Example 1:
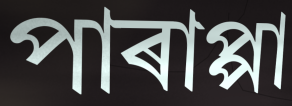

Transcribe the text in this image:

পাৰাপ্পা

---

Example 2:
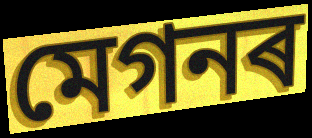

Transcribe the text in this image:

মেগনৰ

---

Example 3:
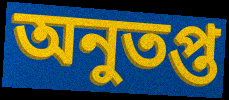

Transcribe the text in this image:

অনুতপ্ত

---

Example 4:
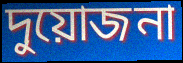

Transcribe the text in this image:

দুয়োজনা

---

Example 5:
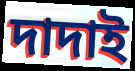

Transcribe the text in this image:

দাদাই